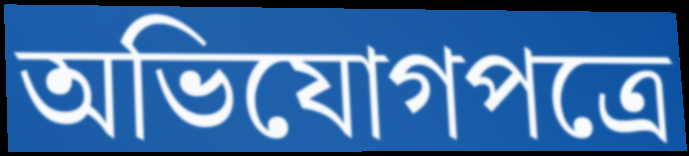
অভিযোগপত্রে